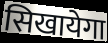
सिखायेगा